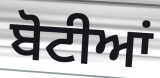
ਬੋਟੀਆਂ